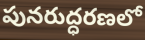
పునరుద్ధరణలో